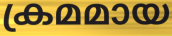
ക്രമമായ